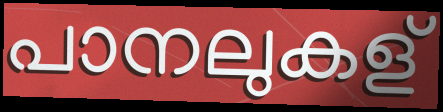
പാനലുകള്